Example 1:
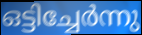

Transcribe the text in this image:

ഒട്ടിച്ചേർന്നു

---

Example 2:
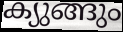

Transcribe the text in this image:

ക്യുങ്ങും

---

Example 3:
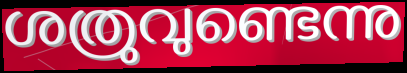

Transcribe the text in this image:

ശത്രുവുണ്ടെന്നു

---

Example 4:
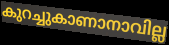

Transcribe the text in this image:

കുറച്ചുകാണാനാവില്ല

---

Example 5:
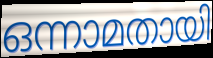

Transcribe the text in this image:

ഒന്നാമതായി